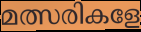
മത്സരികളേ